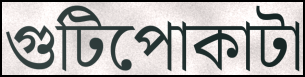
গুটিপোকাটা